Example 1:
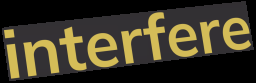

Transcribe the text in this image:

interfere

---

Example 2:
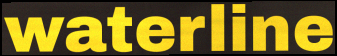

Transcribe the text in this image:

waterline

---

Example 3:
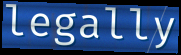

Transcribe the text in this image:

legally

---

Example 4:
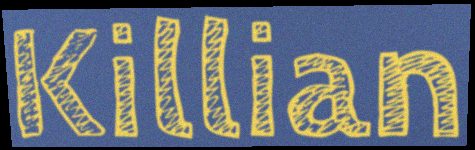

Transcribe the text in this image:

Killian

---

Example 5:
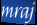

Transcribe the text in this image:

mraj